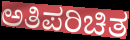
ಅತಿಪರಿಚಿತ